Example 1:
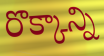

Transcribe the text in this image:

రొక్కాన్ని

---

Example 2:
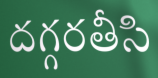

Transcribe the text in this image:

దగ్గరతీసి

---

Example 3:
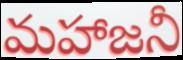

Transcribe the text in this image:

మహాజనీ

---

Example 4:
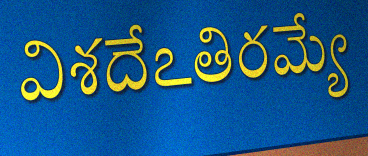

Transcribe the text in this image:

విశదేఽతిరమ్యే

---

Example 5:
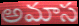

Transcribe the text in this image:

అమాస